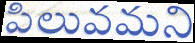
పిలువమని